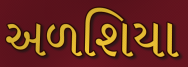
અળશિયા